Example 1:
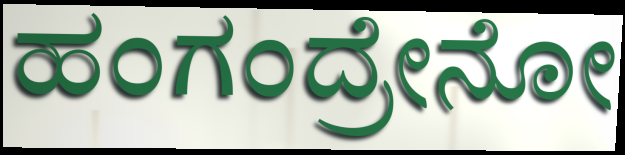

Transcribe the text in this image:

ಹಂಗಂದ್ರೇನೋ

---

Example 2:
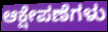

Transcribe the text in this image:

ಆಕ್ಷೇಪಣೆಗಳು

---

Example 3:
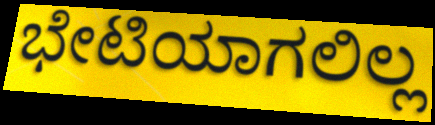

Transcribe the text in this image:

ಭೇಟಿಯಾಗಲಿಲ್ಲ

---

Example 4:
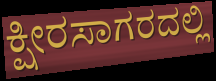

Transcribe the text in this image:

ಕ್ಷೀರಸಾಗರದಲ್ಲಿ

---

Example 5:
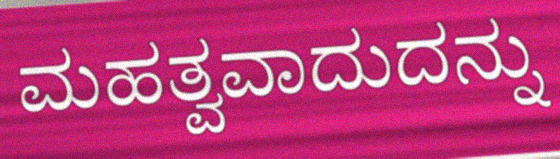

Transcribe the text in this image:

ಮಹತ್ವವಾದುದನ್ನು